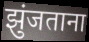
झुंजताना